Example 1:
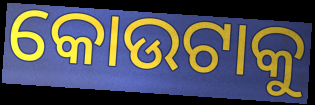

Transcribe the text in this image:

କୋଉଟାକୁ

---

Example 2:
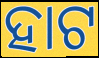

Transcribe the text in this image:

ହାଟ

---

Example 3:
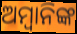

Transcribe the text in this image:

ଅମ୍ବାନିଙ୍କ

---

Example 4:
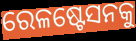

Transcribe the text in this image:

ରେଳଷ୍ଟେସନକୁ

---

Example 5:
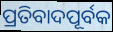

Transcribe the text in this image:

ପ୍ରତିବାଦପୂର୍ବକ